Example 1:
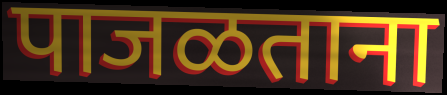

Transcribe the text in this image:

पाजळताना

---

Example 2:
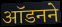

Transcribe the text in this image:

ऑडनने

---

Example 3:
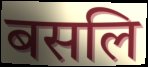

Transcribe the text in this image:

बसलि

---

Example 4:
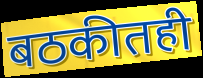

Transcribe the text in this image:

बठकीतही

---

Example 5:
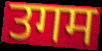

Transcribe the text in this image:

उगम